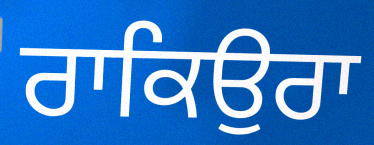
ਰਾਕਿਉਰਾ